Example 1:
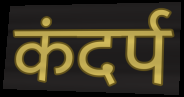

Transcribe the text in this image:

कंदर्प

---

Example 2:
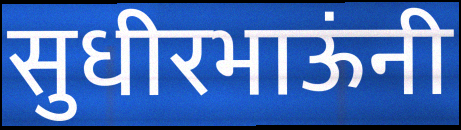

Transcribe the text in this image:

सुधीरभाऊंनी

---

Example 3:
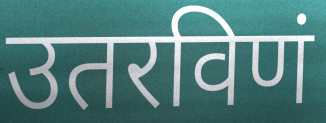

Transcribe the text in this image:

उतरविणं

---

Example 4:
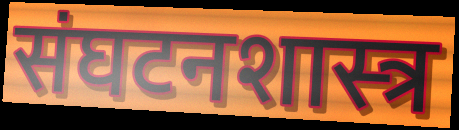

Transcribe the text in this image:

संघटनशास्त्र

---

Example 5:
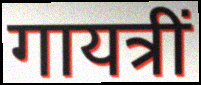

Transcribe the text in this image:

गायत्रीं